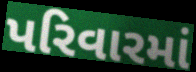
પરિવારમાં